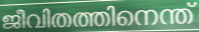
ജീവിതത്തിനെന്ത്